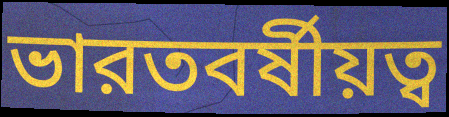
ভারতবর্ষীয়ত্ব